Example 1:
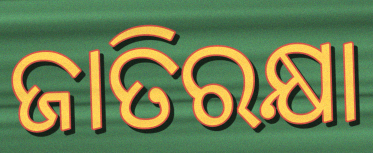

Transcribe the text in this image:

ଜାତିରକ୍ଷା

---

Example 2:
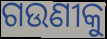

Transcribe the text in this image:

ଗଉଣୀକୁ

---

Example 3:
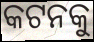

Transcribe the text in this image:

କଟନକୁ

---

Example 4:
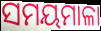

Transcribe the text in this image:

ସମୟମାଳା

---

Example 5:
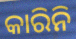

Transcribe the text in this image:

କାରିନି